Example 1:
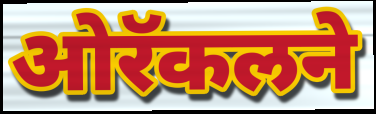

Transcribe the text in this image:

ओरॅकलने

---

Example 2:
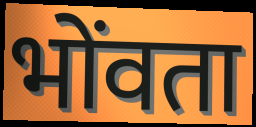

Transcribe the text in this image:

भोंवता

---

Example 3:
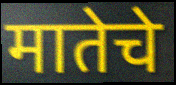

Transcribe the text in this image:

मातेचे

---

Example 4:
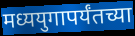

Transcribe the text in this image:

मध्ययुगापर्यंतच्या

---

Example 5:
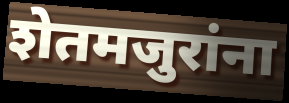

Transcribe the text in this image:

शेतमजुरांना